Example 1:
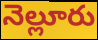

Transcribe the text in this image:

నెల్లూరు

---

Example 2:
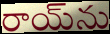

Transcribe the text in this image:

రాయ్‌ను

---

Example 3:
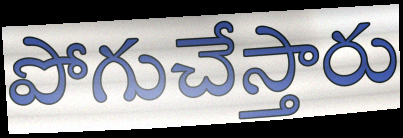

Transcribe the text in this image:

పోగుచేస్తారు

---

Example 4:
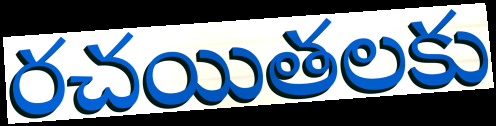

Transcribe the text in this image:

రచయితలకు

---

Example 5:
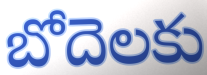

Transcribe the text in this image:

బోదెలకు